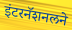
इंटरनॅशनलने